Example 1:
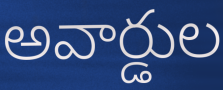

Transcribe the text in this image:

అవార్డుల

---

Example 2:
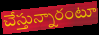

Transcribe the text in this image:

చేస్తున్నారంటూ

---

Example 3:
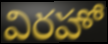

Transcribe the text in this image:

విరహో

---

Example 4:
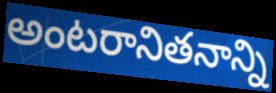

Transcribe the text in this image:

అంటరానితనాన్ని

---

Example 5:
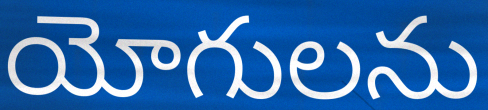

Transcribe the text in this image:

యోగులను